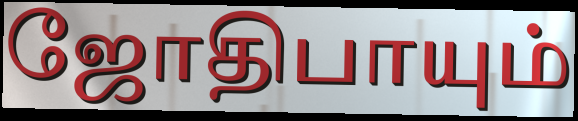
ஜோதிபாயும்